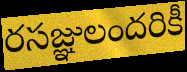
రసజ్ఞులందరికీ